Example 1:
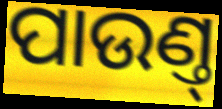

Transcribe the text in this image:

ପାଉଣ୍ତ୍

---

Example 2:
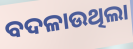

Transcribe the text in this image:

ବଦଳାଉଥିଲା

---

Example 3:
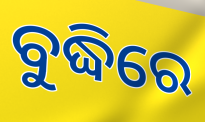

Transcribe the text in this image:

ବୁଦ୍ଧିରେ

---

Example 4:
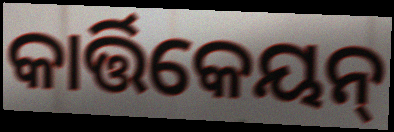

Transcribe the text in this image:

କାର୍ତ୍ତିକେୟନ୍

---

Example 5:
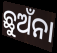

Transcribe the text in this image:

ଛୁଅଁନା